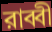
রাব্বী